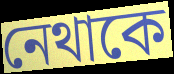
নেথাকে